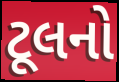
ટૂલનો